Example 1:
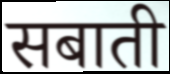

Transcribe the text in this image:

सबाती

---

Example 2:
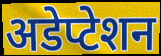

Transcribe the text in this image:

अडेप्टेशन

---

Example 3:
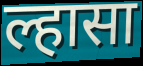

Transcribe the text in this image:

ल्हासा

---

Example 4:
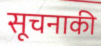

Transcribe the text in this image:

सूचनाकी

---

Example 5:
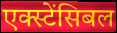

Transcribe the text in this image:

एक्स्टेंसिबल